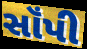
સૉંપી